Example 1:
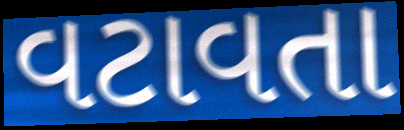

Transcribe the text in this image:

વટાવતા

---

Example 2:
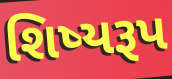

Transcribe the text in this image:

શિષ્યરૂપ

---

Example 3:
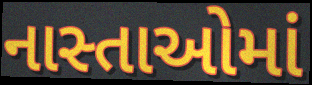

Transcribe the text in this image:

નાસ્તાઓમાં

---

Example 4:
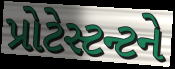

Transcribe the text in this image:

પ્રોટેસ્ટન્ટને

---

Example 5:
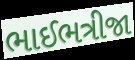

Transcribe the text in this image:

ભાઈભત્રીજા